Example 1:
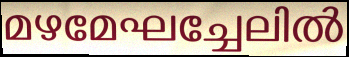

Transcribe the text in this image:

മഴമേഘച്ചേലിൽ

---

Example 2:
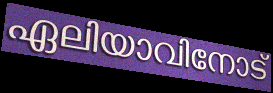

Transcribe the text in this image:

ഏലിയാവിനോട്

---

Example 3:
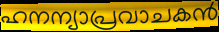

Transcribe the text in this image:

ഹനന്യാപ്രവാചകൻ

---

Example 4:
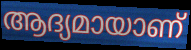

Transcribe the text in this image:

ആദ്യമായാണ്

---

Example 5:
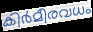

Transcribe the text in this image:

കിർമീരവധം